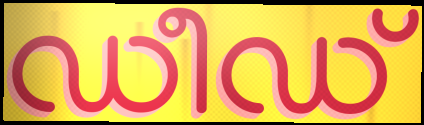
ഡീഡ്